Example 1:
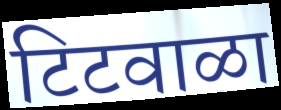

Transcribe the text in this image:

टिटवाळा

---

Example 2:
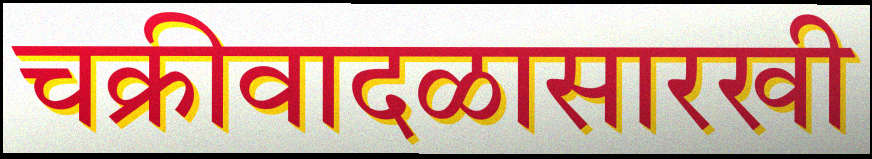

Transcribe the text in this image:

चक्रीवादळासारखी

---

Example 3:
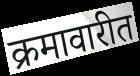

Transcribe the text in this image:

क्रमावारीत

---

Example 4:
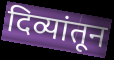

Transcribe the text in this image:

दिव्यांतून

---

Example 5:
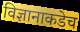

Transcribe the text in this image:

विज्ञानाकडेच